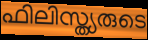
ഫിലിസ്ത്യരുടെ